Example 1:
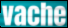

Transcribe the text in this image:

vache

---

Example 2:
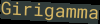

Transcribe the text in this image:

Girigamma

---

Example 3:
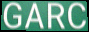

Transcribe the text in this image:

GARC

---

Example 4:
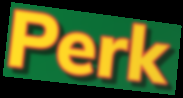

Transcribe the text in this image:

Perk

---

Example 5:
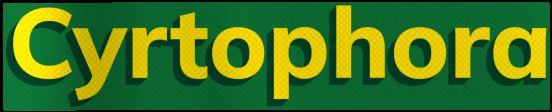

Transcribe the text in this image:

Cyrtophora